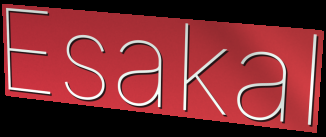
Esakal